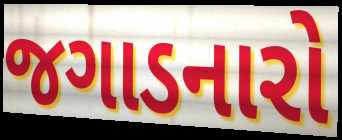
જગાડનારો